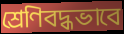
শ্রেণিবদ্ধভাবে